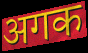
अगक